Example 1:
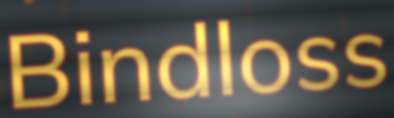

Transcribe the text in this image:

Bindloss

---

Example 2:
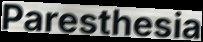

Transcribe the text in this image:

Paresthesia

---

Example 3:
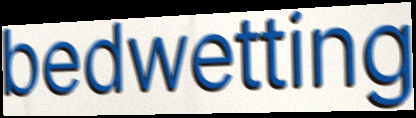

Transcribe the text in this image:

bedwetting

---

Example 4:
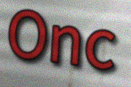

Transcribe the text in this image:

Onc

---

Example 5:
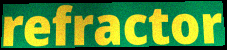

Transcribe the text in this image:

refractor